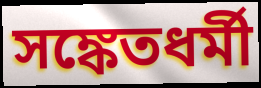
সঙ্কেতধর্মী